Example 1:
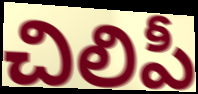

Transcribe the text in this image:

చిలిపీ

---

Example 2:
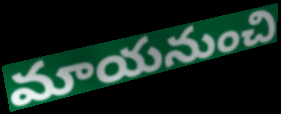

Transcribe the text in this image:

మాయనుంచి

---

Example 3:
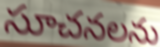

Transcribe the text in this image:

సూచనలను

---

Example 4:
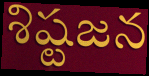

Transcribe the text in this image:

శిష్టజన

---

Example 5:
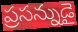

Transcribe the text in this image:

ప్రసన్నుడై